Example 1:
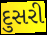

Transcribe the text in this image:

દુસરી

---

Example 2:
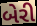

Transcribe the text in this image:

બેરી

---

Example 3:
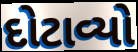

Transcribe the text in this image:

દોટાવ્યો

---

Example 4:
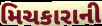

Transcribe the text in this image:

મિચકારાની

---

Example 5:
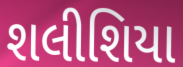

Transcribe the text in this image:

શલીશિયા